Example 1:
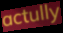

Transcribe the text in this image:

actully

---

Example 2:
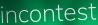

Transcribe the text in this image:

incontest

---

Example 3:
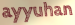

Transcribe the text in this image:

ayyuhan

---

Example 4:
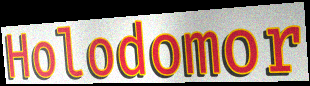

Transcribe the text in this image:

Holodomor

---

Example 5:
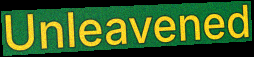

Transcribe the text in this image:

Unleavened